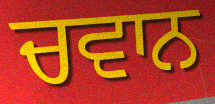
ਚਵਾਨ